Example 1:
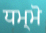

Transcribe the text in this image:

ਧਮ੍ਮੋ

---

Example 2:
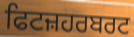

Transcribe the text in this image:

ਫਿਟਜ਼ਹਰਬਰਟ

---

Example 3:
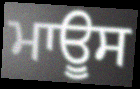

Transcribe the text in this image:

ਮਾਊਸ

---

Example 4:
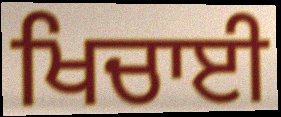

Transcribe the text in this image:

ਖਿਚਾਈ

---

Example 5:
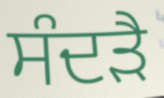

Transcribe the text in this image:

ਸੰਦੜੈ